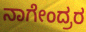
ನಾಗೇಂದ್ರರ